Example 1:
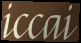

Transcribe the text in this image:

iccai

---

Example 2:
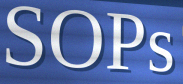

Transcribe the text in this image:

SOPs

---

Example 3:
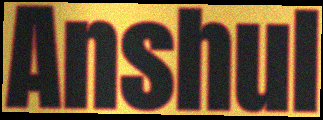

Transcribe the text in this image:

Anshul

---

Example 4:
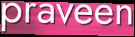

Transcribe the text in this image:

praveen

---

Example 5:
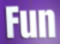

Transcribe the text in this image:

Fun